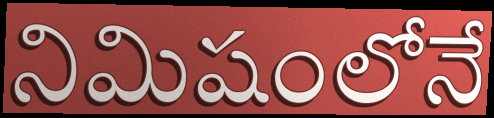
నిమిషంలోనే